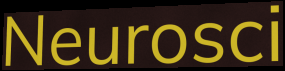
Neurosci